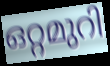
ഒറ്റമുറി